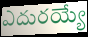
ఎదురయ్యే